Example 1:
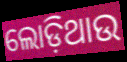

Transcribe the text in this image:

ଲୋଡ଼ିଥାଉ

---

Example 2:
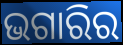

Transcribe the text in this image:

ଭଗାରିର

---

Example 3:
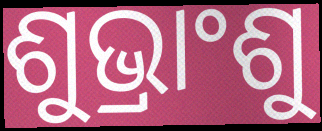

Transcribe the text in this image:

ଶୁଭ୍ରାଂଶୁ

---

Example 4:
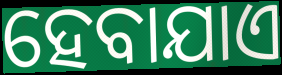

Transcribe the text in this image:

ହେବାଯାଏ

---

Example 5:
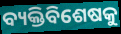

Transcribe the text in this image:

ବ୍ୟକ୍ତିବିଶେଷକୁ